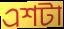
এশটা